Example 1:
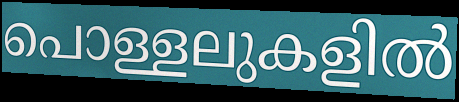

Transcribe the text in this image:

പൊള്ളലുകളിൽ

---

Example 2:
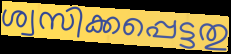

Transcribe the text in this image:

ശ്വസിക്കപ്പെട്ടതു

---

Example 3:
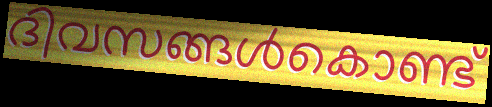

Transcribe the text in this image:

ദിവസങ്ങൾകൊണ്ട്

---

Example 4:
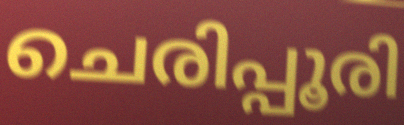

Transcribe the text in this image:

ചെരിപ്പൂരി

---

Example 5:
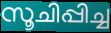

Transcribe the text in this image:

സൂചിപ്പിച്ച